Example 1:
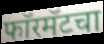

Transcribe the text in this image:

फॉरमॅटचा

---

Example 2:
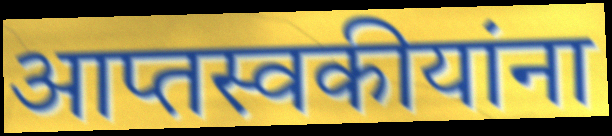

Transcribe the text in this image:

आप्तस्वकीयांना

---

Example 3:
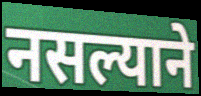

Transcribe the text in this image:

नसल्याने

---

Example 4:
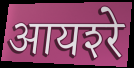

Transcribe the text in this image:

आयश्रे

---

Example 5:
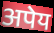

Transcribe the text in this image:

अपेय